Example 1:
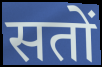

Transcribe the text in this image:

सतों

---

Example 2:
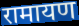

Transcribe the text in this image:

रामायण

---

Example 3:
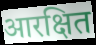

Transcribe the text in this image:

आरक्षित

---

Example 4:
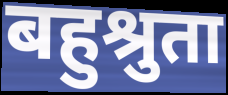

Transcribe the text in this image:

बहुश्रुता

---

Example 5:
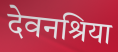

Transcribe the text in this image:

देवनश्रिया